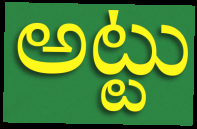
అట్టు